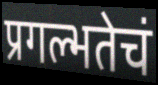
प्रगल्भतेचं